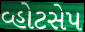
વ્હોટસેપ